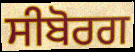
ਸੀਬੋਰਗ